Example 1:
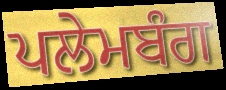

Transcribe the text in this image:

ਪਲੇਮਬੰਗ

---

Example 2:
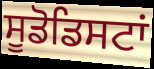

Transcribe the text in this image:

ਸੂਡੋਡਿਸਟਾਂ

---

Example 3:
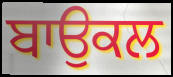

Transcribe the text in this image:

ਬਾਉਕਲ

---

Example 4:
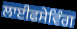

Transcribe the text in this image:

ਲਾਈਫਸੇਵਿੰਗ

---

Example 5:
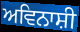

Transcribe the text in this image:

ਅਵਿਨਾਸ਼ੀ